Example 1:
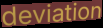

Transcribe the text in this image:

deviation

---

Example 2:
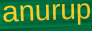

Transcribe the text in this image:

anurup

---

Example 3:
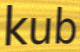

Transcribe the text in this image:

kub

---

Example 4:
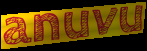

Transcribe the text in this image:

anuvu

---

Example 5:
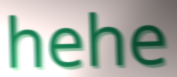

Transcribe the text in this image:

hehe